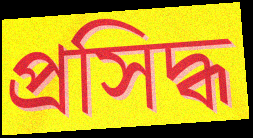
প্ৰসিদ্ধ